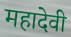
महादेवी